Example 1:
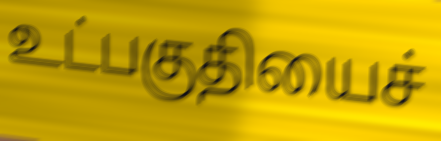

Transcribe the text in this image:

உட்பகுதியைச்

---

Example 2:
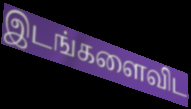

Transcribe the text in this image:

இடங்களைவிட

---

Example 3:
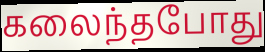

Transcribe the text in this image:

கலைந்தபோது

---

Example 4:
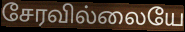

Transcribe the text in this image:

சேரவில்லையே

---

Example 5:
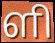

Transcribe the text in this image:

ளி